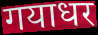
गयाधर